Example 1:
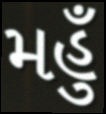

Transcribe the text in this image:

મહુઁ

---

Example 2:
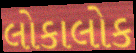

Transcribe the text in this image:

લોકાલોક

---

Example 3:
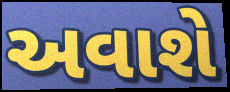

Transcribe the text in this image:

અવાશે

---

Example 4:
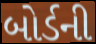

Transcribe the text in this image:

બોર્ડની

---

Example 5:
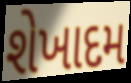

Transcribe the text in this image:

શેખાદમ